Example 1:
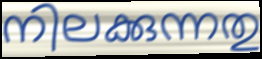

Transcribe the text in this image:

നിലക്കുന്നതു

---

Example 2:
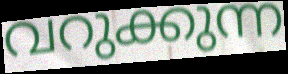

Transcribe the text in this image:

വറുക്കുന്ന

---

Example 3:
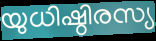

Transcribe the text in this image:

യുധിഷ്ഠിരസ്യ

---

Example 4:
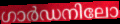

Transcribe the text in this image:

ഗാർഡനിലോ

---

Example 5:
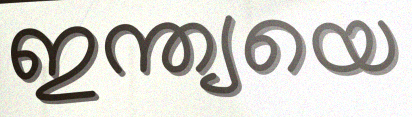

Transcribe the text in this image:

ഇന്ത്യയെ